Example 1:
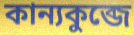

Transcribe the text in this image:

কান্যকুব্জে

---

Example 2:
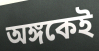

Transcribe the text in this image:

অঙ্গকেই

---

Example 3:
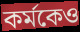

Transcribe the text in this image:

কর্মকেও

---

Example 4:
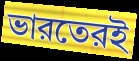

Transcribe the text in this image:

ভারতেরই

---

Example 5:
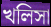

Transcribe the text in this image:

খলিসা